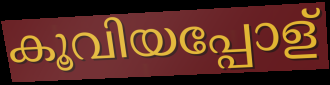
കൂവിയപ്പോള്